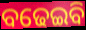
ବଢେଇବି